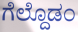
ಗೆಲ್ದೊಡಂ